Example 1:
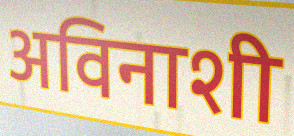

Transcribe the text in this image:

अविनाशी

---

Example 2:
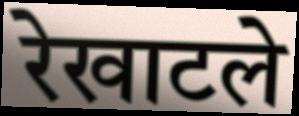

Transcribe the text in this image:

रेखाटले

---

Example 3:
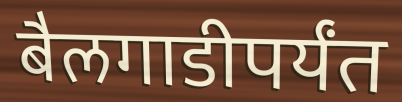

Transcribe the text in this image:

बैलगाडीपर्यंत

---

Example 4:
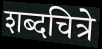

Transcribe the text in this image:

शब्दचित्रे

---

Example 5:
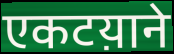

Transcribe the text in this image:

एकटय़ाने